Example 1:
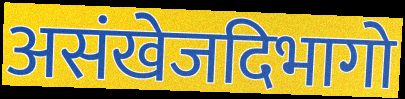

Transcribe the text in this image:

असंखेजदिभागो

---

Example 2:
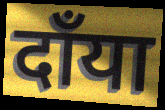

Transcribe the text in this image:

दाँया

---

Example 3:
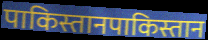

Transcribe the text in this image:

पाकिस्तानपाकिस्तान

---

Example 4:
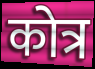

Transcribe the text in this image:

कोत्र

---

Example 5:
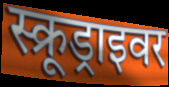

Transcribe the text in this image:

स्क्रूड्राइवर